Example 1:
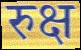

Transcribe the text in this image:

रुक्ष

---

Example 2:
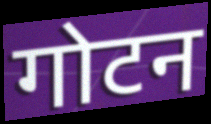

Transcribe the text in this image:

गोटन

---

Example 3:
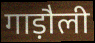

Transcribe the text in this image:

गाड़ौली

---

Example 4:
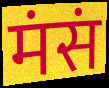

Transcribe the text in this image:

मंसं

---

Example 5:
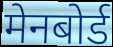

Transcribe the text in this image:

मेनबोर्ड